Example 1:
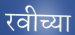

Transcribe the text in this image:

रवीच्या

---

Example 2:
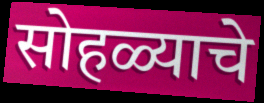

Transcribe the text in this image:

सोहळ्याचे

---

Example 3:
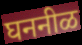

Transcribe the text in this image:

घननीळ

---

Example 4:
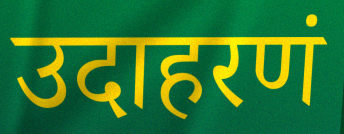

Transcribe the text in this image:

उदाहरणं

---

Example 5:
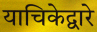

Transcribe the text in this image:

याचिकेद्वारे